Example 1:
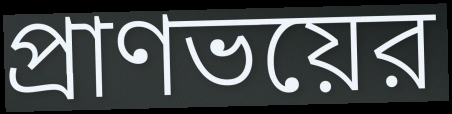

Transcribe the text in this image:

প্রাণভয়ের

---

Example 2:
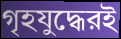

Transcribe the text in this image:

গৃহযুদ্ধেরই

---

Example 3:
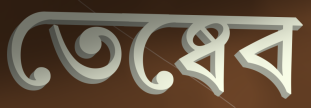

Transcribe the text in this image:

তেষ্বেব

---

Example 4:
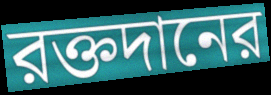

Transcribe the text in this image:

রক্তদানের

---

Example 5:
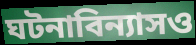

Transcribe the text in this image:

ঘটনাবিন্যাসও